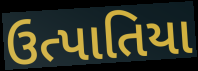
ઉત્પાતિયા